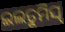
ଇଲତୁମିସ୍